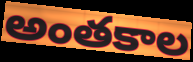
అంతకాల